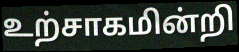
உற்சாகமின்றி